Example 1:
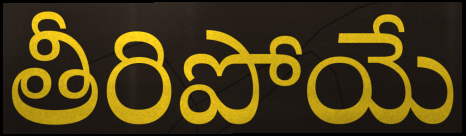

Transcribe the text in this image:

తీరిపోయే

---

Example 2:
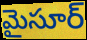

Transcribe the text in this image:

మైసూర్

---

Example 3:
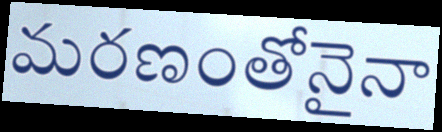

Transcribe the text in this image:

మరణంతోనైనా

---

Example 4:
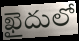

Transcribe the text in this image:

ఖైదులో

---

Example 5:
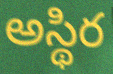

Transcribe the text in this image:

అస్థిర